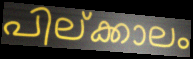
പില്ക്കാലം